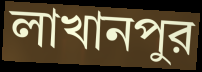
লাখানপুর